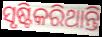
ସୃଷ୍ଟିକରିଥାନ୍ତି